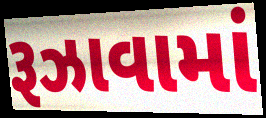
રૂઝાવામાં